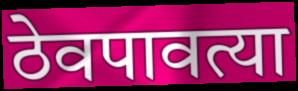
ठेवपावत्या